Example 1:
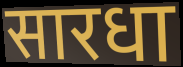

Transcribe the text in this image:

सारधा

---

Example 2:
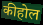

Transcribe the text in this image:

कीहोल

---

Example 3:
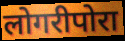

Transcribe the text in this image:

लोगरीपोरा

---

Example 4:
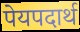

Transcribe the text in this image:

पेयपदार्थ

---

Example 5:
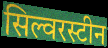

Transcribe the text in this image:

सिल्वरस्टीन